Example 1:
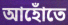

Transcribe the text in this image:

আহোঁতে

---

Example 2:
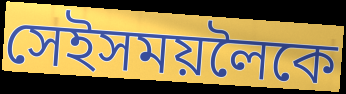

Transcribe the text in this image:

সেইসময়লৈকে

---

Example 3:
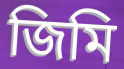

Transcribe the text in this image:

জিমি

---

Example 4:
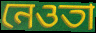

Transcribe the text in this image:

নেওতা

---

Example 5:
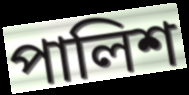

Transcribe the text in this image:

পালিশ